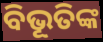
ବିଭୂତିଙ୍କ